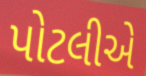
પોટલીએ